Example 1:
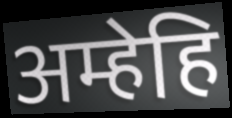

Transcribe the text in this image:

अम्हेहि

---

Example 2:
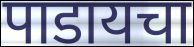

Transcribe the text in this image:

पाडायचा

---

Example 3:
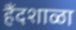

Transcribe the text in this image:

हैंदशाळा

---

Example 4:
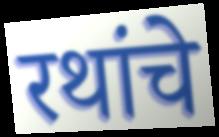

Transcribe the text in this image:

रथांचे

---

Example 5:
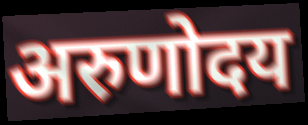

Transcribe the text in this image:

अरुणोदय